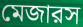
মেজারস